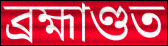
ব্ৰহ্মাণ্ডত